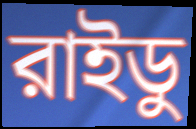
রাইডু